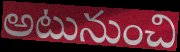
అటునుంచి